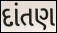
દાંતણ